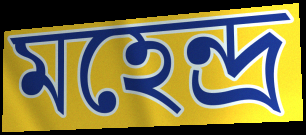
মহেন্দ্র